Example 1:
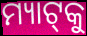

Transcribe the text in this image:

ମ୍ୟାଟ୍‌କୁ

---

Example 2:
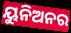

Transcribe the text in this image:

ୟୁନିଅନର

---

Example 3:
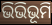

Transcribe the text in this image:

ଭିଭିଭୂମି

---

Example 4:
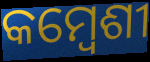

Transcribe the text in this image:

କମ୍ବେଶୀ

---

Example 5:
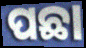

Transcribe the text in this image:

ପଛା